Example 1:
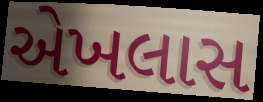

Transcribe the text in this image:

એખલાસ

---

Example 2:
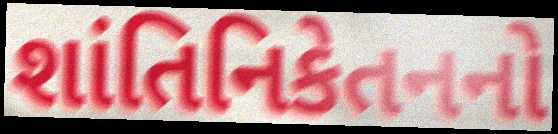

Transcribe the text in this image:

શાંતિનિકેતનનો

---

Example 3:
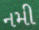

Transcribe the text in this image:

નમી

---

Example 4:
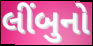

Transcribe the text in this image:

લીંબુનો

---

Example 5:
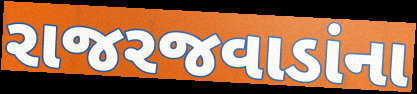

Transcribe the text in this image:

રાજરજવાડાંના